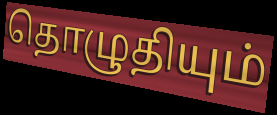
தொழுதியும்